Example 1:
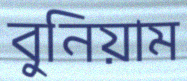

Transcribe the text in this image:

বুনিয়াম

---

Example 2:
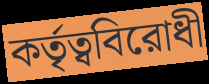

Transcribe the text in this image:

কর্তৃত্ববিরোধী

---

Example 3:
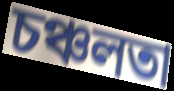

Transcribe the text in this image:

চঞ্চলতা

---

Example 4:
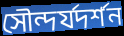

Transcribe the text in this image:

সৌন্দর্যদর্শন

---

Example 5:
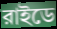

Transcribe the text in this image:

রাইডে